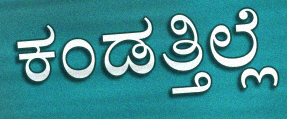
ಕಂಡತ್ತಿಲ್ಲೆ